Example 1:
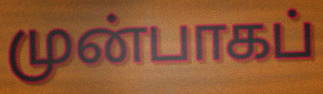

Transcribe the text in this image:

முன்பாகப்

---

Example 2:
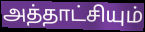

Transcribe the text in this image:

அத்தாட்சியும்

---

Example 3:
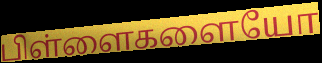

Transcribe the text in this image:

பிள்ளைகளையோ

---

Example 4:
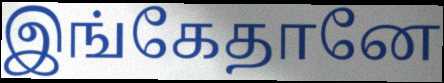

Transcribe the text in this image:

இங்கேதானே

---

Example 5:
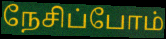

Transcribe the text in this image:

நேசிப்போம்